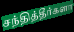
சந்தித்தீர்களா